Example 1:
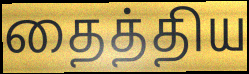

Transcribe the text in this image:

தைத்திய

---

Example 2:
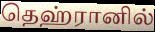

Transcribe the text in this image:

தெஹ்ரானில்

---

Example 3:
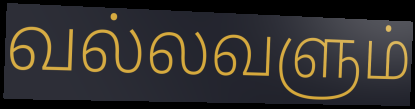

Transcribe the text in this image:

வல்லவளும்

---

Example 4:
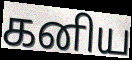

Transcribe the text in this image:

கனிய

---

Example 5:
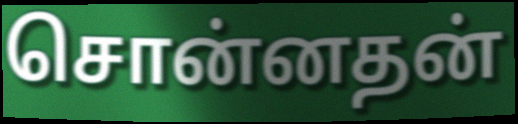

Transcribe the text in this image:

சொன்னதன்